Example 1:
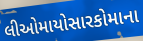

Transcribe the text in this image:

લીઓમાયોસારકોમાના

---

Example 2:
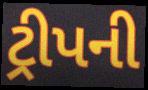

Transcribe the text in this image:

ટ્રીપની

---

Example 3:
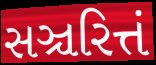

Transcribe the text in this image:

સઞ્ચરિત્તં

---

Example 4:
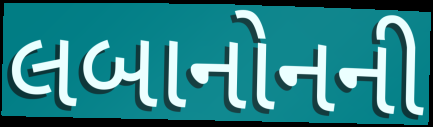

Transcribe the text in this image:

લબાનોનની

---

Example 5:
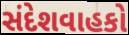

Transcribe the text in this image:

સંદેશવાહકો